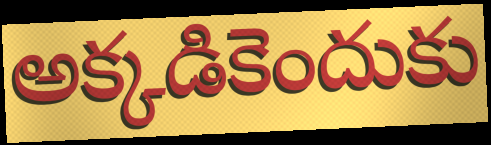
అక్కడికెందుకు